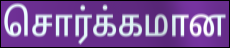
சொர்க்கமான